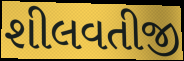
શીલવતીજી